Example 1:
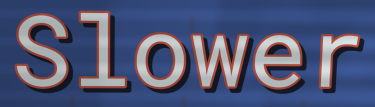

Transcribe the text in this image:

Slower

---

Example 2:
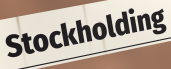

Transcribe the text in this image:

Stockholding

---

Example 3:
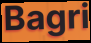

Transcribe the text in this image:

Bagri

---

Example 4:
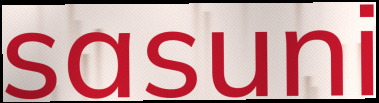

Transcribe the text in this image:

sasuni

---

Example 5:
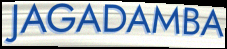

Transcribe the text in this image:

JAGADAMBA